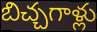
బిచ్చగాళ్లు